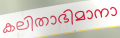
കലിതാഭിമാനാ